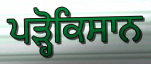
ਪੜ੍ਹੋਕਿਸਾਨ